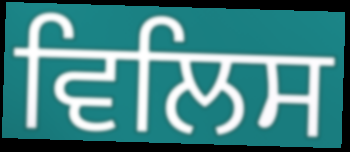
ਵਿਲਿਸ